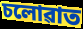
চলোৱাত